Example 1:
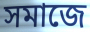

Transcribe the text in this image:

সমাজে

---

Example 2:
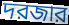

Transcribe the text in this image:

দরজার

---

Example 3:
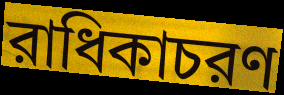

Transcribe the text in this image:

রাধিকাচরণ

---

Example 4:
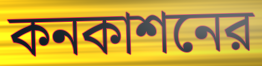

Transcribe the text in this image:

কনকাশনের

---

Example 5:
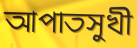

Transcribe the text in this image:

আপাতসুখী